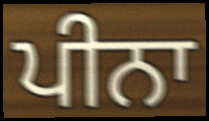
ਪੀਨਾ